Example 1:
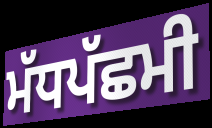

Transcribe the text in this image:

ਮੱਧਪੱਛਮੀ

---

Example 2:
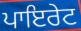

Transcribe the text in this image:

ਪਾਇਰੇਟ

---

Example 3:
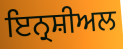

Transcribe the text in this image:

ਇਨ੍ਰਸ਼ੀਅਲ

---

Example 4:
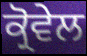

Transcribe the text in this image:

ਕ੍ਰੋਵੇਲ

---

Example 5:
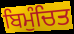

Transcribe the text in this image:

ਬਿਮੁੰਚਿਤ